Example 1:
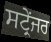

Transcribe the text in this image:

ਸਟ੍ਰੇਂਜਰ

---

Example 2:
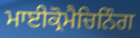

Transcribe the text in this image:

ਮਾਈਕ੍ਰੋਮੈਚਿਨਿੰਗ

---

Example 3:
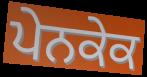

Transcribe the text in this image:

ਪੇਨਕੇਕ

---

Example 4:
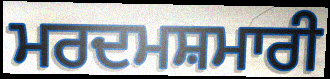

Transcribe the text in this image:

ਮਰਦਮਸ਼ਮਾਰੀ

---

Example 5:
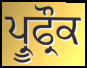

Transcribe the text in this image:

ਪ੍ਰੂਫ੍ਰੌਕ